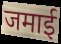
जमाई